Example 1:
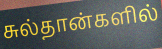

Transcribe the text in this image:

சுல்தான்களில்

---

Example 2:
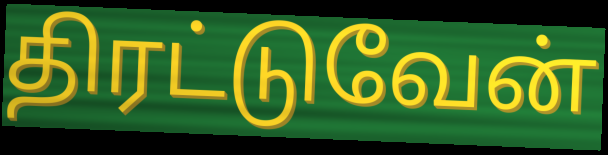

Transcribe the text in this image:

திரட்டுவேன்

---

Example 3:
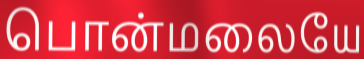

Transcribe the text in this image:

பொன்மலையே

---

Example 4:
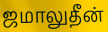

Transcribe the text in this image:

ஜமாலுதீன்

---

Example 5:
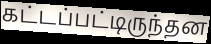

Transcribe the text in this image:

கட்டப்பட்டிருந்தன